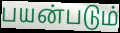
பயன்படும்